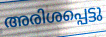
അരിശപ്പെട്ടു